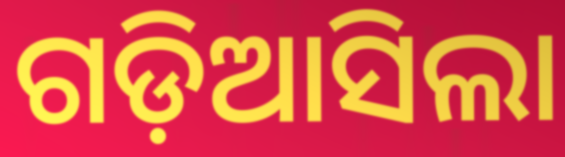
ଗଡ଼ିଆସିଲା